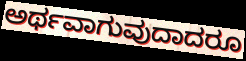
ಅರ್ಥವಾಗುವುದಾದರೂ